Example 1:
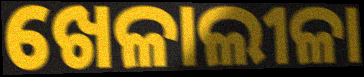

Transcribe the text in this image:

ଖେଳାଲୀଳା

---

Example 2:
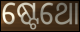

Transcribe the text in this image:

ଷ୍ଟେଥୋ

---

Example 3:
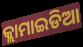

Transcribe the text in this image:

କ୍ଲାମାଇଡିଆ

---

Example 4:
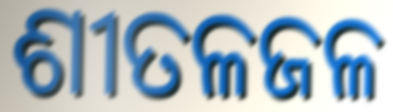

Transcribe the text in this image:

ଶୀତଳଜଳ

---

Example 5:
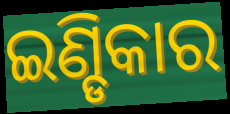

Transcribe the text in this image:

ଇଣ୍ଡିକାର